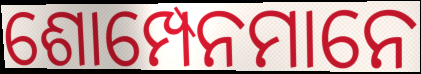
ଶୋମ୍ପେନମାନେ